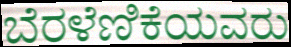
ಬೆರಳೆಣಿಕೆಯವರು